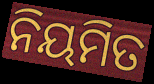
ନିୟମିତ